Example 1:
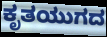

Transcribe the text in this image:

ಕೃತಯುಗದ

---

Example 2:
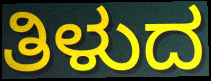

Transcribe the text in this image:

ತಿಳುದ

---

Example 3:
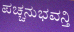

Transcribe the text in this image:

ಪಚ್ಚನುಭವನ್ತಿ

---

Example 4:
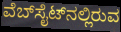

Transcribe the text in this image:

ವೆಬ್‌ಸೈಟ್‌ನಲ್ಲಿರುವ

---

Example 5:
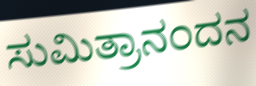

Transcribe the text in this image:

ಸುಮಿತ್ರಾನಂದನ